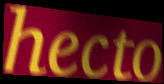
hecto